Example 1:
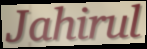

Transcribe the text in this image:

Jahirul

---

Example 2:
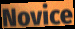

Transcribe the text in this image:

Novice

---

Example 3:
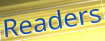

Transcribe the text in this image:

Readers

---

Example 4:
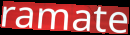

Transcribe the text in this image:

ramate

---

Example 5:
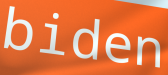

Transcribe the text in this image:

biden